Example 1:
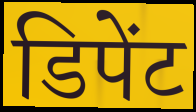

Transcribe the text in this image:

डिपेंट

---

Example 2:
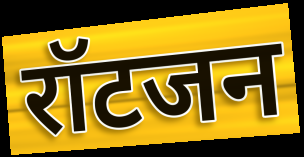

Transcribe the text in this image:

रॉटजन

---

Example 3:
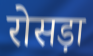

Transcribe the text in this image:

रोसड़ा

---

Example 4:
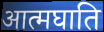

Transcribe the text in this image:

आत्मघाति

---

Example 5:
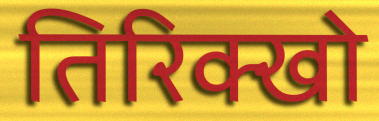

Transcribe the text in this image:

तिरिक्खो